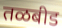
तळबीड